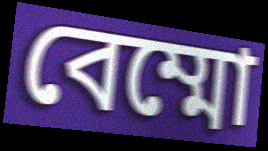
বেম্মো